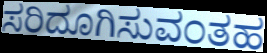
ಸರಿದೂಗಿಸುವಂತಹ